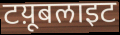
टय़ूबलाइट